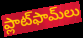
ప్లాట్‌ఫామ్‌లు